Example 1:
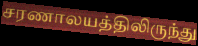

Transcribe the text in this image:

சரணாலயத்திலிருந்து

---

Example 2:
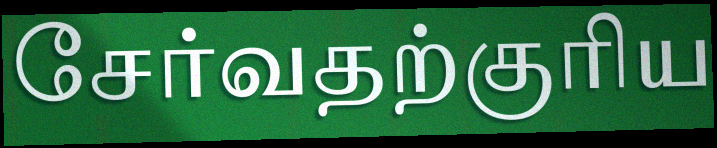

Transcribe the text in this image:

சேர்வதற்குரிய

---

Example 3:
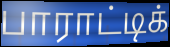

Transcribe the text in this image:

பாராட்டிக்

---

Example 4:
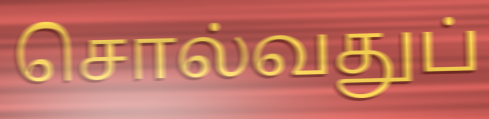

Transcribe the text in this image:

சொல்வதுப்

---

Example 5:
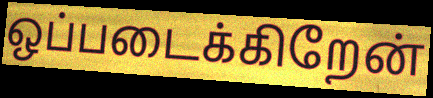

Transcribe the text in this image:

ஒப்படைக்கிறேன்